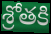
శ్రోతకి